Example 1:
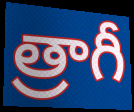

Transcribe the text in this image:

త్రాగీ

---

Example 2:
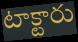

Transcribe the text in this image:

టాక్టారు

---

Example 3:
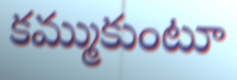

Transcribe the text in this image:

కమ్ముకుంటూ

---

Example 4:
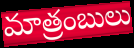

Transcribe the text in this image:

మాత్రంబులు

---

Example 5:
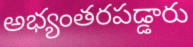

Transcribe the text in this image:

అభ్యంతరపడ్డారు